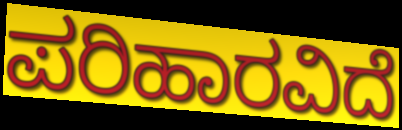
ಪರಿಹಾರವಿದೆ